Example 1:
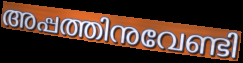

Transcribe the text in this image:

അപ്പത്തിനുവേണ്ടി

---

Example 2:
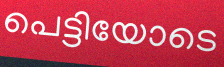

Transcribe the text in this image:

പെട്ടിയോടെ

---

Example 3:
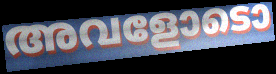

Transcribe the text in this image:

അവളോടൊ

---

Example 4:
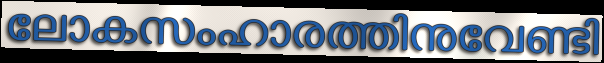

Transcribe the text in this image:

ലോകസംഹാരത്തിനുവേണ്ടി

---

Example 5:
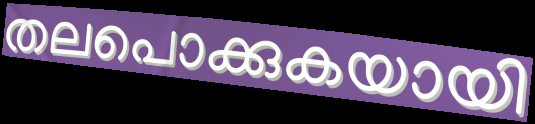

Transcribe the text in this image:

തലപൊക്കുകയായി